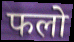
फलो